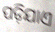
ପଡ଼ିଯାଏ